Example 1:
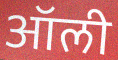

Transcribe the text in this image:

ऑली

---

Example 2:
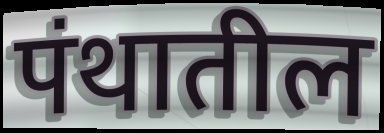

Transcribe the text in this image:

पंथातील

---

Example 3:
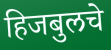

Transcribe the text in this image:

हिजबुलचे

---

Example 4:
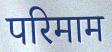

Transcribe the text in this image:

परिमाम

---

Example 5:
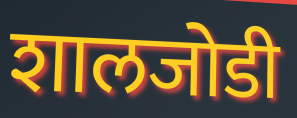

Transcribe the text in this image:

शालजोडी